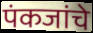
पंकजांचे